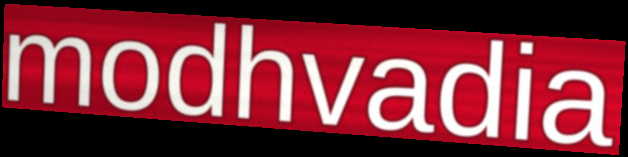
modhvadia